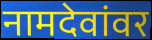
नामदेवांवर